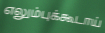
எலும்புக்கூடாய்